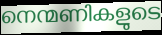
നെന്മണികളുടെ